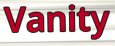
Vanity